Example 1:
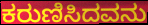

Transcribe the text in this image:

ಕರುಣಿಸಿದವನು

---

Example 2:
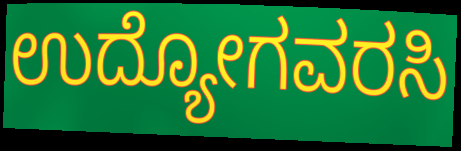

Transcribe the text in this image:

ಉದ್ಯೋಗವರಸಿ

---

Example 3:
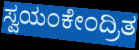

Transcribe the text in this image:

ಸ್ವಯಂಕೇಂದ್ರಿತ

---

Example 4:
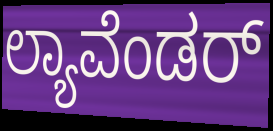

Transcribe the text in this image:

ಲ್ಯಾವೆಂಡರ್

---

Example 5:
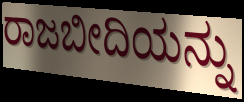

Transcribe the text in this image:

ರಾಜಬೀದಿಯನ್ನು